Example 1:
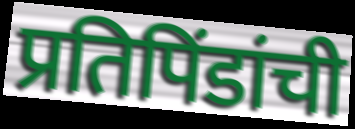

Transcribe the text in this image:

प्रतिपिंडांची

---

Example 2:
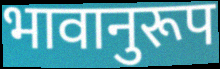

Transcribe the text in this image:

भावानुरूप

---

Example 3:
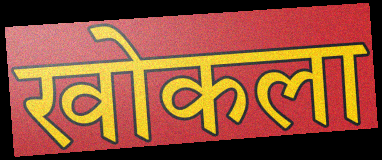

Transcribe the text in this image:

खोकला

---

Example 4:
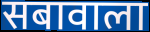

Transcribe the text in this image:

सबावाला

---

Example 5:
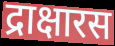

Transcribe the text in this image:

द्राक्षारस